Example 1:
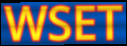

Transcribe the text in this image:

WSET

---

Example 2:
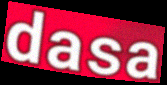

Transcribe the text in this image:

dasa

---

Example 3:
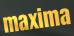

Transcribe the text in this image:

maxima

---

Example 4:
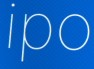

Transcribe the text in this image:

ipo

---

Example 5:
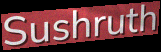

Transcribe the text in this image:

Sushruth